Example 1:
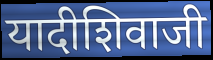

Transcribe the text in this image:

यादीशिवाजी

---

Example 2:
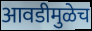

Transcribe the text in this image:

आवडीमुळेच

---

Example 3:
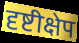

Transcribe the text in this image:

दृष्टीक्षेप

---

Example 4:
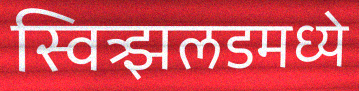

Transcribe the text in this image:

स्वित्र्झलडमध्ये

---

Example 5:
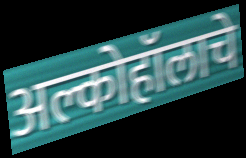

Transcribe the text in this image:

अल्कोहॉलाचे